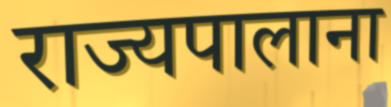
राज्यपालाना